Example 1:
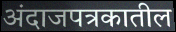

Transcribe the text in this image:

अंदाजपत्रकातील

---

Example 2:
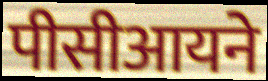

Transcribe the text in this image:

पीसीआयने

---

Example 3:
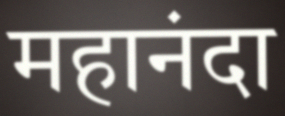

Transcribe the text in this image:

महानंदा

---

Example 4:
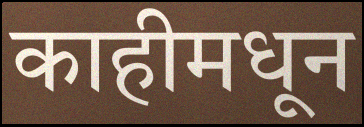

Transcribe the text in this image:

काहीमधून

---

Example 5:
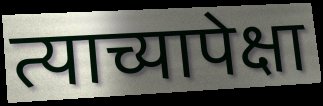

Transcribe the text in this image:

त्याच्यापेक्षा